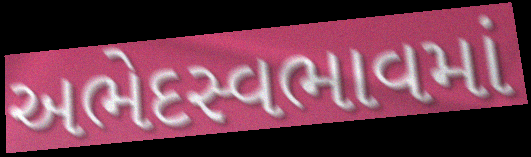
અભેદસ્વભાવમાં